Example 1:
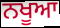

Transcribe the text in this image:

ਨਖੂਆ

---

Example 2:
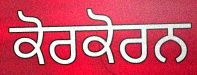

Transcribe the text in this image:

ਕੋਰਕੋਰਨ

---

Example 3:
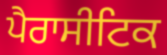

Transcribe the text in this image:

ਪੈਰਾਸੀਟਿਕ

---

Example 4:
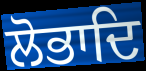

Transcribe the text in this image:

ਲੋਭਾਦਿ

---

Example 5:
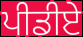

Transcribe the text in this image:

ਪੀਡੀਏ